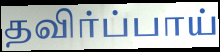
தவிர்ப்பாய்